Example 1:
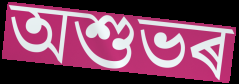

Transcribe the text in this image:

অশুভৰ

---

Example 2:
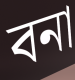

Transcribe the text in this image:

বনা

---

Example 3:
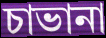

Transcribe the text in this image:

চাভানা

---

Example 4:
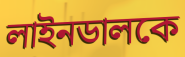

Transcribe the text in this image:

লাইনডালকে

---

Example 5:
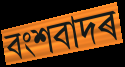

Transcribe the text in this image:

বংশবাদৰ